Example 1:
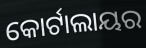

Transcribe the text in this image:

କୋର୍ଟାଲାୟର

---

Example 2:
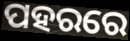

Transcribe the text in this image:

ପହରରେ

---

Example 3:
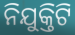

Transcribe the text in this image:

ନିଯୁକ୍ତିଟି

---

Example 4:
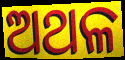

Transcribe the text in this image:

ଅଥଳ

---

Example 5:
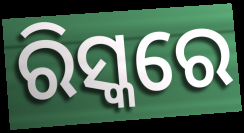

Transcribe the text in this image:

ରିସ୍କରେ